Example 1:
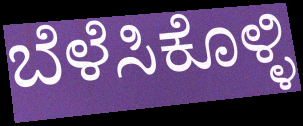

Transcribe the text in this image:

ಬೆಳೆಸಿಕೊಳ್ಳಿ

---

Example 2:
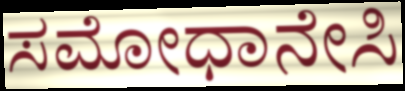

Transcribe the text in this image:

ಸಮೋಧಾನೇಸಿ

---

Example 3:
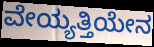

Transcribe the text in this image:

ವೇಯ್ಯತ್ತಿಯೇನ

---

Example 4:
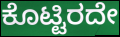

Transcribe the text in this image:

ಕೊಟ್ಟಿರದೇ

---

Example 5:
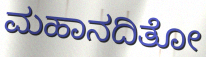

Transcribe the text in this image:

ಮಹಾನದಿತೋ